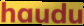
haudu